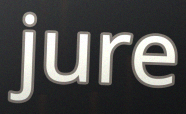
jure